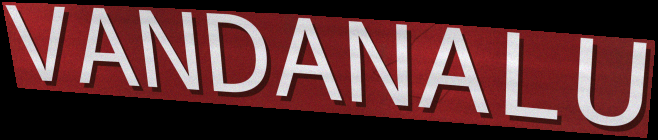
VANDANALU